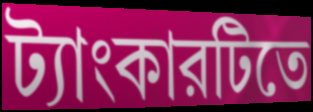
ট্যাংকারটিতে